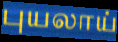
புயலாய்